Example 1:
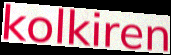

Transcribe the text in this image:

kolkiren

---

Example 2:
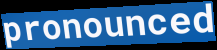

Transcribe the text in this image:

pronounced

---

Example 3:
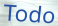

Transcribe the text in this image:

Todo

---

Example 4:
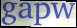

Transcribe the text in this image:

gapw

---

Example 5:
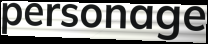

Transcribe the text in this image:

personage